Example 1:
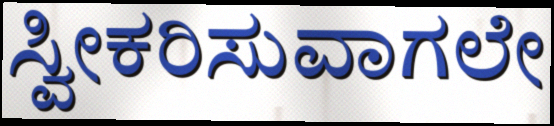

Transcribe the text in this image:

ಸ್ವೀಕರಿಸುವಾಗಲೇ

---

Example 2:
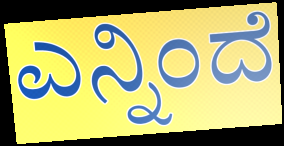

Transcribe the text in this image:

ಎನ್ನಿಂದೆ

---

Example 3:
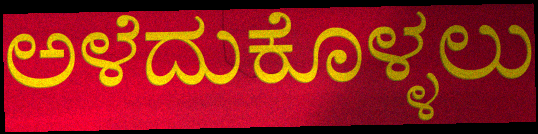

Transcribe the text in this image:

ಅಳೆದುಕೊಳ್ಳಲು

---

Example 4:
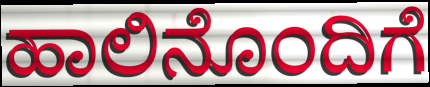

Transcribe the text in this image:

ಹಾಲಿನೊಂದಿಗೆ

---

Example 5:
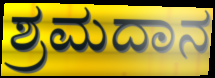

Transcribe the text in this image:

ಶ್ರಮದಾನ